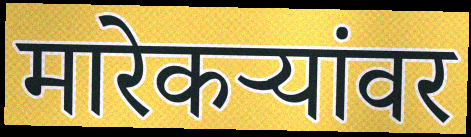
मारेकऱ्यांवर